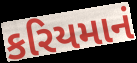
કરિયમાનં